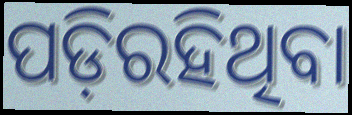
ପଡ଼ିରହିଥିବା